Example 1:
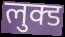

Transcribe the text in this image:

लुक्ड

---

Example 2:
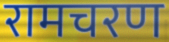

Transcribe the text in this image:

रामचरण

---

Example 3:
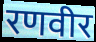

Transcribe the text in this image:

रणवीर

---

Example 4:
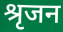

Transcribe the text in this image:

श्रृजन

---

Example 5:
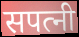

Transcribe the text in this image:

सपत्नी